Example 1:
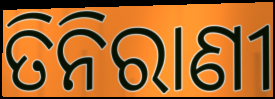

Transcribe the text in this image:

ତିନିରାଣୀ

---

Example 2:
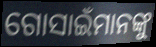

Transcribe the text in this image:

ଗୋସାଇଁମାନଙ୍କୁ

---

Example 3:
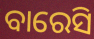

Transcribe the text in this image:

ବାରେସି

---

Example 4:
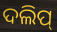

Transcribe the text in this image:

ଦଲିପ୍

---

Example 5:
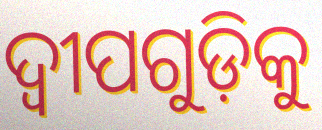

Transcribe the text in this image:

ଦ୍ୱୀପଗୁଡ଼ିକୁ